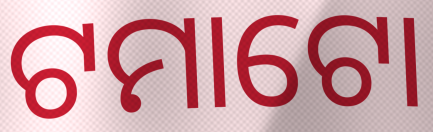
ଟମାଟୋ